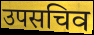
उपसचिव